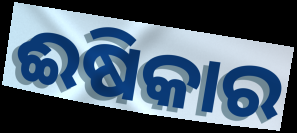
ଈଷିକାର